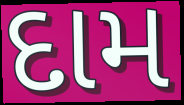
દામ